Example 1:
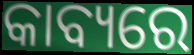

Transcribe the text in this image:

କାବ୍ଯରେ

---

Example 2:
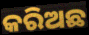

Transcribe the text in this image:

କରିଅଛ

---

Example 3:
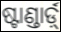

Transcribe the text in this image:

ଷ୍ଟାଣ୍ଡାର୍ଡ଼୍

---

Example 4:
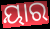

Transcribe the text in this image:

ୟାର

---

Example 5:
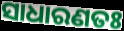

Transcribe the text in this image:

ସାଧାରଣତଃ